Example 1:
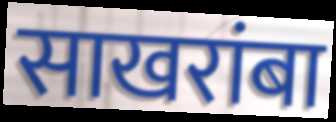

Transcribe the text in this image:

साखरांबा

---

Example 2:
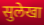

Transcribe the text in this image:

सुलेखा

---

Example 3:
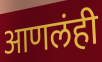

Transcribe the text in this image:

आणलंही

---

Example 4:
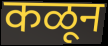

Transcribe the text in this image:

कळून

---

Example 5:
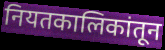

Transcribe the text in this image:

नियतकालिकांतून